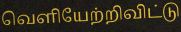
வெளியேற்றிவிட்டு